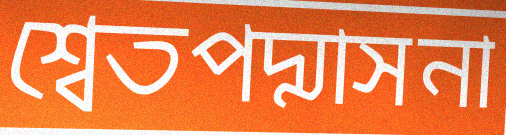
শ্বেতপদ্মাসনা